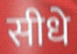
सीधे